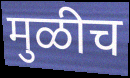
मुळीच